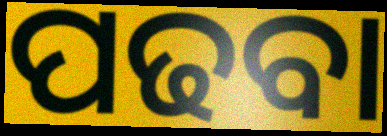
ପଢବା